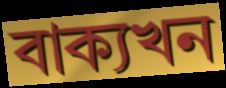
বাক্যখন